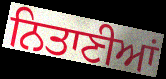
ਨਿਤਾਣੀਆਂ